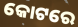
କୋଟରେ